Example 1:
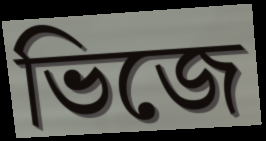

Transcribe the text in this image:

ভিজে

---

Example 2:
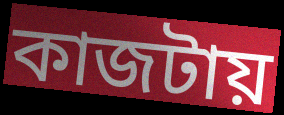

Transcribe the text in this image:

কাজটায়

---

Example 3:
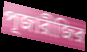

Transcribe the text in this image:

পূজারীজির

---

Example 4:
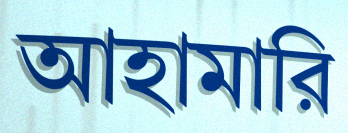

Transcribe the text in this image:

আহামারি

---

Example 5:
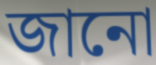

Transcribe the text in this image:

জানো